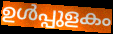
ഉൾപ്പുളകം